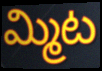
మ్మిట